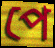
পে